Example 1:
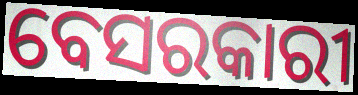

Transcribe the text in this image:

ବେସରକାରୀ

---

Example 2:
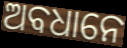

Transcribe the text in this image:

ଅବଧାନେ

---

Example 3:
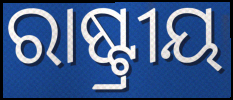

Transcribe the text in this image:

ରାଷ୍ଟ୍ରୀୟ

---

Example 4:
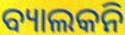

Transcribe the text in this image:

ବ୍ୟାଲକନି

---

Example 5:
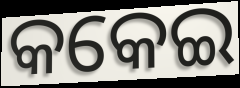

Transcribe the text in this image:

କକେଇ